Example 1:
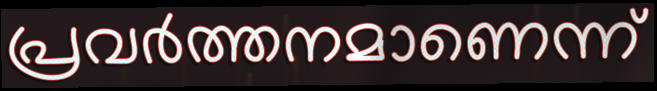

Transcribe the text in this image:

പ്രവർത്തനമാണെന്ന്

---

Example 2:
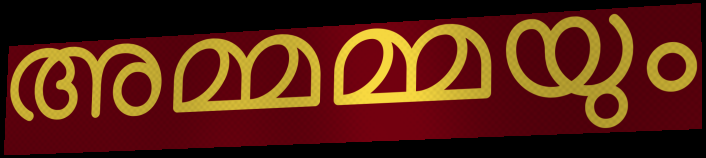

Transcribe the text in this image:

അമ്മമ്മയും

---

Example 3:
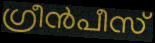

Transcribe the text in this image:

ഗ്രീൻപീസ്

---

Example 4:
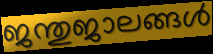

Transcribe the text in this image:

ജന്തുജാലങ്ങൾ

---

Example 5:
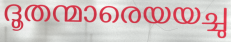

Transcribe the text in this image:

ദൂതന്മാരെയയച്ചു